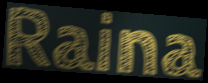
Raina